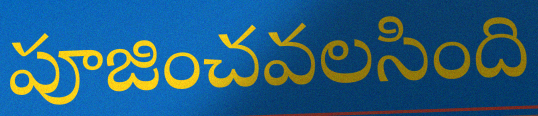
పూజించవలసింది